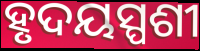
ହୃଦୟସ୍ପଶୀ